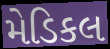
મેડિકલ